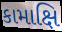
કામાક્ષિ